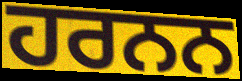
ਹਰਨਨ